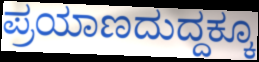
ಪ್ರಯಾಣದುದ್ದಕ್ಕೂ